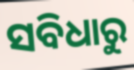
ସବିଧାରୁ